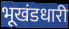
भूखंडधारी